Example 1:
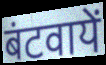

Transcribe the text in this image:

बंटवायें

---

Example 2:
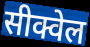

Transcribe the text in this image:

सीक्वेल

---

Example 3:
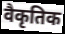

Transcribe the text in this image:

वैकृतिक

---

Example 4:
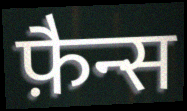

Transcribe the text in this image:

फ़ैन्स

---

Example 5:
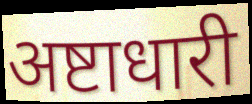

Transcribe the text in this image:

अष्टाधारी